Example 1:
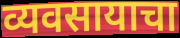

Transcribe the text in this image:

व्यवसायाचा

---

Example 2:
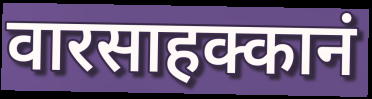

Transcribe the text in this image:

वारसाहक्कानं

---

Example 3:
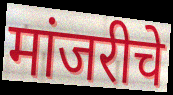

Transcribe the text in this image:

मांजरीचे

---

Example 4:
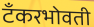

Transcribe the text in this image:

टँकरभोवती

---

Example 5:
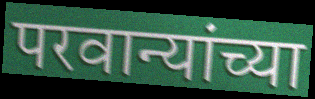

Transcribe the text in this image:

परवान्यांच्या